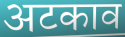
अटकाव